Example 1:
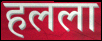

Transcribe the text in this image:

हलला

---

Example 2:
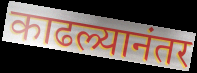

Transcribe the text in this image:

काढल्यानंतर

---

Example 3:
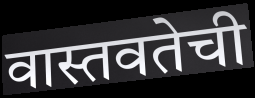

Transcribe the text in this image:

वास्तवतेची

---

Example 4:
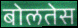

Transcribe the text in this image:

बोलतेस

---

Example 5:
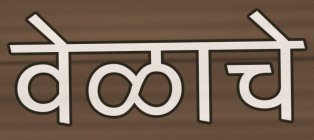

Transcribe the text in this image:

वेळाचे